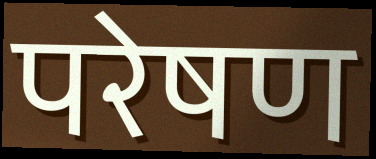
परेषण